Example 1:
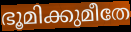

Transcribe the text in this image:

ഭൂമിക്കുമീതേ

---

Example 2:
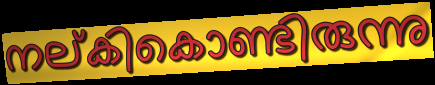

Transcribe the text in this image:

നല്കികൊണ്ടിരുന്നു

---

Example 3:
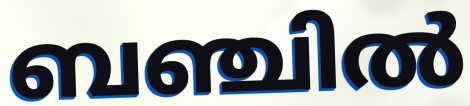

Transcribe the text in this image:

ബഞ്ചിൽ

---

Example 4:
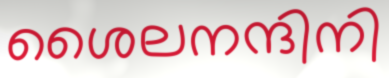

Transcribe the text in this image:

ശൈലനന്ദിനി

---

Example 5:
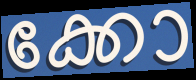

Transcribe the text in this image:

ക്കോ